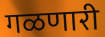
गळणारी